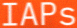
IAPs